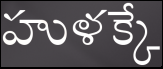
హుళక్కే